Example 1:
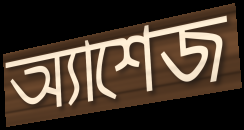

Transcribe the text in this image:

অ্যাশেজ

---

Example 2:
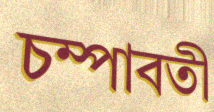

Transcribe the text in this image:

চম্পাবতী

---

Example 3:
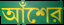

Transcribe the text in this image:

আঁশের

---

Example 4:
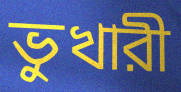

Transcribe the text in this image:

ভুখারী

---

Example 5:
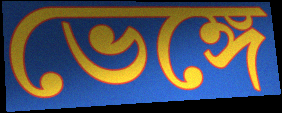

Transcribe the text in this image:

ভেঙ্গে